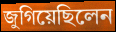
জুগিয়েছিলেন